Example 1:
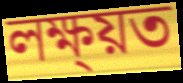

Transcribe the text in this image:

লক্ষ্য়ত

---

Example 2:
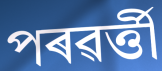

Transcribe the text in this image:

পৰৱৰ্ত্তী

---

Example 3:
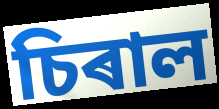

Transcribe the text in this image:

চিৰাল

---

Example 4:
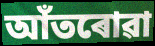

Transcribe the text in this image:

আঁতৰোৱা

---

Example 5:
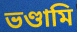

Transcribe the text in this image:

ভণ্ডামি